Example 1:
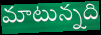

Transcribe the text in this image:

మాటున్నది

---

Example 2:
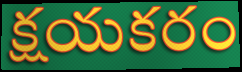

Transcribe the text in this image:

క్షయకరం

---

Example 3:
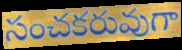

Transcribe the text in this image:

సంచకరువుగా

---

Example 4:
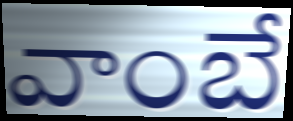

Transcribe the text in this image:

వాంబే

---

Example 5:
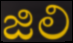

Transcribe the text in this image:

జిలి